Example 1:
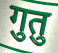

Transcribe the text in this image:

गुतु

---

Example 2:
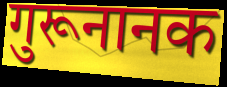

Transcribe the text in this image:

गुरूनानक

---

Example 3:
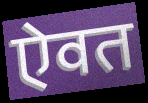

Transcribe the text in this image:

ऐवत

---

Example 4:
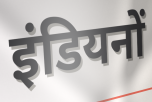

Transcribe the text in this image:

इंडियनों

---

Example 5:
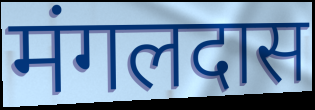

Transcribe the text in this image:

मंगलदास